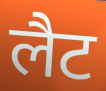
लैट